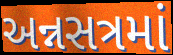
અન્નસત્રમાં